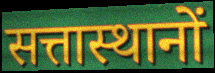
सत्तास्थानों